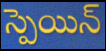
స్పెయిన్